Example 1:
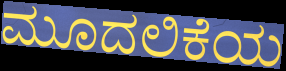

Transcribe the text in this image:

ಮೂದಲಿಕೆಯ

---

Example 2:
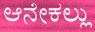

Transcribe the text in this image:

ಆನೇಕಲ್ಲು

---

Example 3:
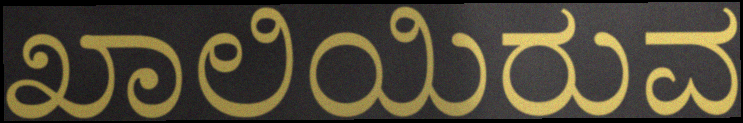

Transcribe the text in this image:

ಖಾಲಿಯಿರುವ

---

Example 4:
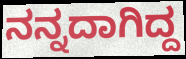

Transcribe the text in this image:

ನನ್ನದಾಗಿದ್ದ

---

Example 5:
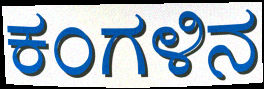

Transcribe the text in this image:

ಕಂಗಳಿನ